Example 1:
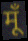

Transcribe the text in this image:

मूँ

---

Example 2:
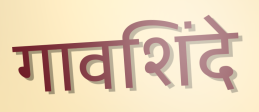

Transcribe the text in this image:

गावशिंदे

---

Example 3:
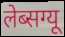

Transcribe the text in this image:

लेब्सग्यू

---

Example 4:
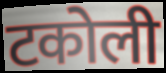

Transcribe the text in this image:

टकोली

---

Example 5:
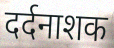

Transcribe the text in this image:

दर्दनाशक